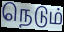
நெடும்